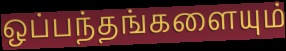
ஒப்பந்தங்களையும்